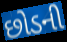
છોડની